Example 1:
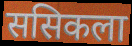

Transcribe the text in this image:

ससिकला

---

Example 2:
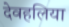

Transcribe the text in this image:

देवहलिया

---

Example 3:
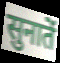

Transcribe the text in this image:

सुनातें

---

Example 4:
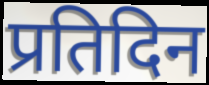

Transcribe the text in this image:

प्रतिदिन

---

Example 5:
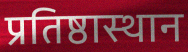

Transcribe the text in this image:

प्रतिष्ठास्थान